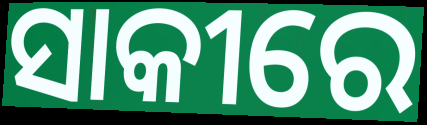
ସାକୀରେ